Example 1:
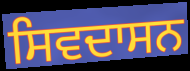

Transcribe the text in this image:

ਸਿਵਦਾਸਨ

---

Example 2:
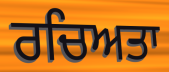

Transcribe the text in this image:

ਰਚਿਅਤਾ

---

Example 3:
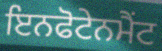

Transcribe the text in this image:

ਇਨਫੋਟੇਨਮੈਂਟ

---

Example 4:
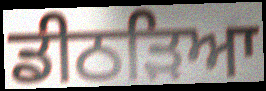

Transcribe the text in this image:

ਡੀਠੜਿਆ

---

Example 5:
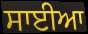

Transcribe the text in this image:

ਸਾਈਆ